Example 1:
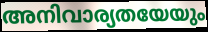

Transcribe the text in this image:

അനിവാര്യതയേയും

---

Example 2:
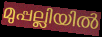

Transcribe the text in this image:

മുപ്പല്ലിയിൽ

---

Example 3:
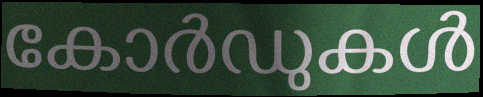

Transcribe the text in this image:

കോർഡുകൾ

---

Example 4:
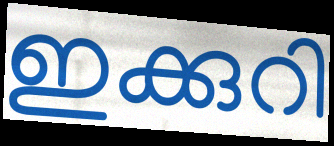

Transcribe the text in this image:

ഇക്കുറി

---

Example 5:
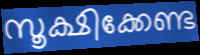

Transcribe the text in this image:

സൂക്ഷിക്കേണ്ട